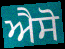
ਐਸੋ